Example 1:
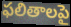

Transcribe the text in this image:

ఫలితాలపై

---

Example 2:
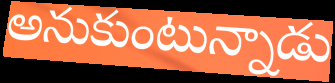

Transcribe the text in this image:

అనుకుంటున్నాడు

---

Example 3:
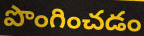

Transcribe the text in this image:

పొంగించడం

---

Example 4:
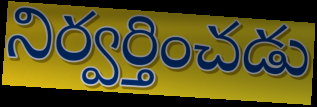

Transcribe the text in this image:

నిర్వర్తించడు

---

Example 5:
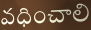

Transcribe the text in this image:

వధించాలి